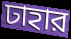
ঢাহার